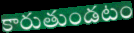
కారుతుండటం